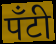
पॅंटी